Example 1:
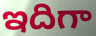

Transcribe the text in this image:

ఇదిగా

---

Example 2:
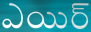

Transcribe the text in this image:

ఎయిర్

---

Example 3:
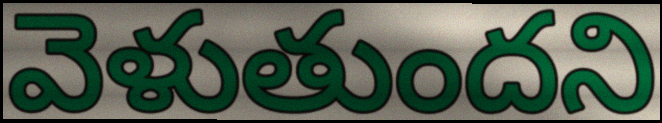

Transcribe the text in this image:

వెళుతుందని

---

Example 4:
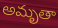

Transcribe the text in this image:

అమృతా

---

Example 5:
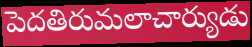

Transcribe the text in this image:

పెదతిరుమలాచార్యుడు